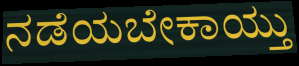
ನಡೆಯಬೇಕಾಯ್ತು